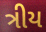
ત્રીય